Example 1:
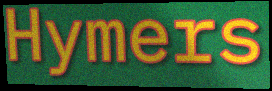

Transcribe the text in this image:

Hymers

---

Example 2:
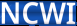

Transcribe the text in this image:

NCWI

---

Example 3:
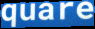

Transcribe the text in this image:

quare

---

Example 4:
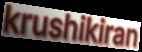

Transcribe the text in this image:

krushikiran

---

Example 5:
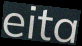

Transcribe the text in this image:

eita